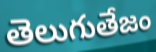
తెలుగుతేజం